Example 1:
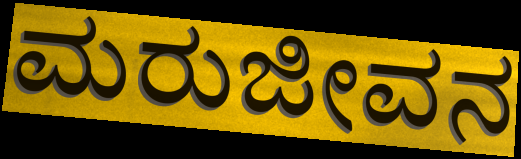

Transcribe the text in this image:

ಮರುಜೀವನ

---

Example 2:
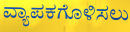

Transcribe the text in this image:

ವ್ಯಾಪಕಗೊಳಿಸಲು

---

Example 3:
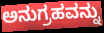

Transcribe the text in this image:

ಅನುಗ್ರಹವನ್ನು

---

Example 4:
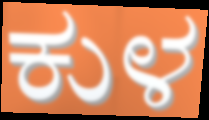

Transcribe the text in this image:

ಕುಳ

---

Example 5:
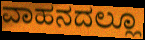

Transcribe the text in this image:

ವಾಹನದಲ್ಲೂ